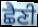
ਛੈਣੀ